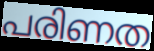
പരിണത